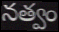
నత్వం